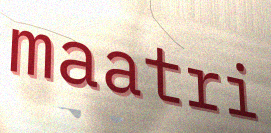
maatri